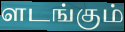
ளடங்கும்